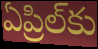
ఏప్రిల్‌కు